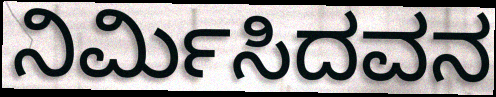
ನಿರ್ಮಿಸಿದವನ